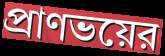
প্রাণভয়ের